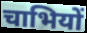
चाभियों